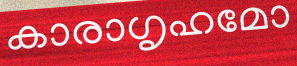
കാരാഗൃഹമോ